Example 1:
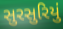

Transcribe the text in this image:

સુરસુરિયું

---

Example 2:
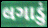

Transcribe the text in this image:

લગાડું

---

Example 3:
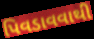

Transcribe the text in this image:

પિવડાવવાથી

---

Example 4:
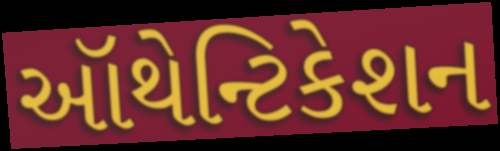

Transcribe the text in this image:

ઑથેન્ટિકેશન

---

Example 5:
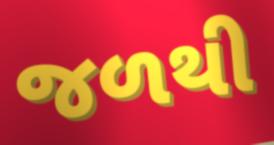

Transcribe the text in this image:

જળથી